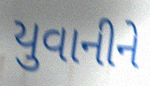
યુવાનીને